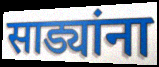
साड्यांना